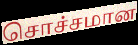
சொச்சமான